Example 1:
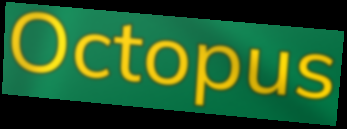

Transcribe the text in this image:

Octopus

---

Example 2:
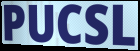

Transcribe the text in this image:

PUCSL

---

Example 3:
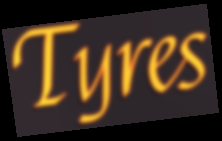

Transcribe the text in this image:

Tyres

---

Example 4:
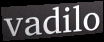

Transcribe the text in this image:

vadilo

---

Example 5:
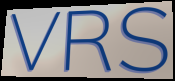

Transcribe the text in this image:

VRS